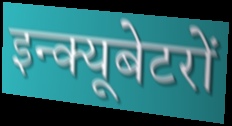
इन्क्यूबेटरों